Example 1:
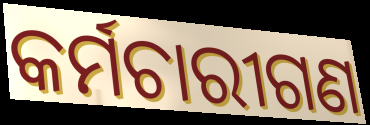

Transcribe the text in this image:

କର୍ମଚାରୀଗଣ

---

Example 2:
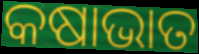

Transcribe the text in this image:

କଷାଭାତ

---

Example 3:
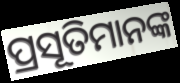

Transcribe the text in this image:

ପ୍ରସୂତିମାନଙ୍କ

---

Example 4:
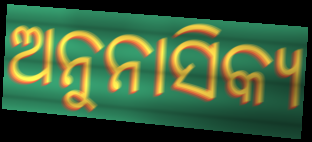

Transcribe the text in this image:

ଅନୁନାସିକ୍ୟ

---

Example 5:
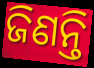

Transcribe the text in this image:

ଜିଣନ୍ତି